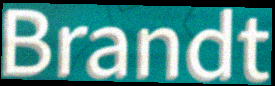
Brandt